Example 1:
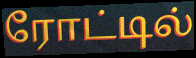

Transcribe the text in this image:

ரோட்டில்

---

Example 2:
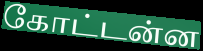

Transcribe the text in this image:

கோட்டன்ன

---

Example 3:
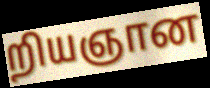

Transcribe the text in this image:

றியஞான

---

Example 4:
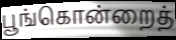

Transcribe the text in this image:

பூங்கொன்றைத்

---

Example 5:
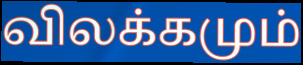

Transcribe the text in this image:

விலக்கமும்